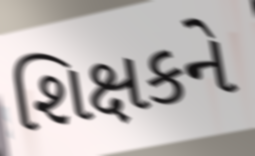
શિક્ષકને